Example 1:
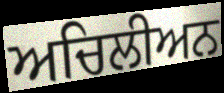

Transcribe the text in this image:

ਅਚਿਲੀਅਨ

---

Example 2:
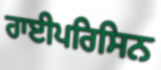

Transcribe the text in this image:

ਹਾਈਪਰਿਸਿਨ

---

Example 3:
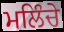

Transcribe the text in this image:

ਮਲਿੰਚੇ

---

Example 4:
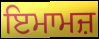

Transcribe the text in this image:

ਇਮਾਮਜ਼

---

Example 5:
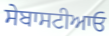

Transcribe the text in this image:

ਸੇਬਾਸਟੀਆਓ